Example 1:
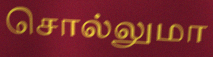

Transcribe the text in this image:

சொல்லுமா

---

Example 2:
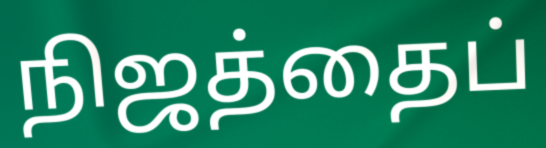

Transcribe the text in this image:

நிஜத்தைப்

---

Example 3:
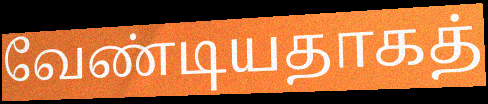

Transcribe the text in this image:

வேண்டியதாகத்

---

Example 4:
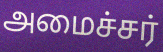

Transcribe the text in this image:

அமைச்சர்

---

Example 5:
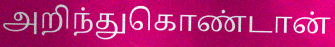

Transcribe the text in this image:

அறிந்துகொண்டான்